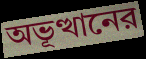
অভূত্থানের